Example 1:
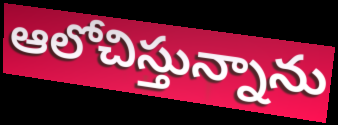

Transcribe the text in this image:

ఆలోచిస్తున్నాను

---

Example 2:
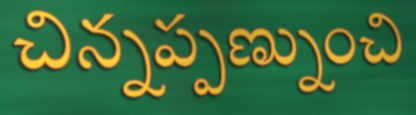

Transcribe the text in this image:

చిన్నప్పణ్నుంచి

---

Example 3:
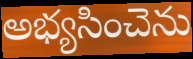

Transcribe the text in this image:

అభ్యసించెను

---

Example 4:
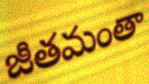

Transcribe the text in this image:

జీతమంతా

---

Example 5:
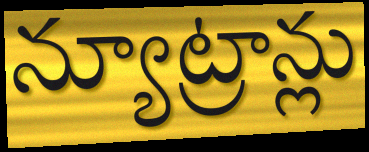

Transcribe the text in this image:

న్యూట్రాన్లు